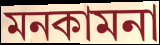
মনকামনা